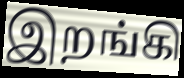
இறங்கி